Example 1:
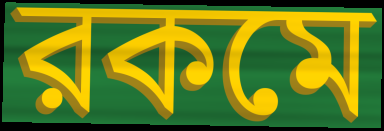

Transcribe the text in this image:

রকমে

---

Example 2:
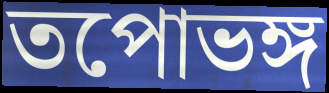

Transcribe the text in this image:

তপোভঙ্গ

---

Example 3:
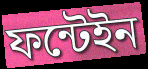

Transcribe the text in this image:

ফন্টেইন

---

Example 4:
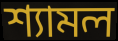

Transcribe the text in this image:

শ্যামল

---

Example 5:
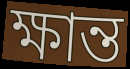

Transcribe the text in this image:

ক্ষান্ত